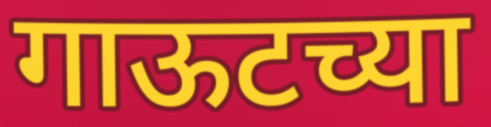
गाऊटच्या